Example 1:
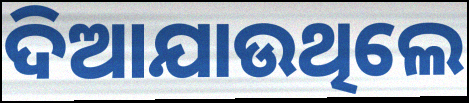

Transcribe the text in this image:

ଦିଆଯାଉଥିଲେ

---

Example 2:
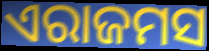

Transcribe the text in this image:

ଏରାଜମସ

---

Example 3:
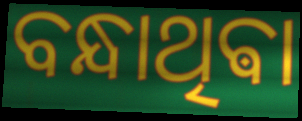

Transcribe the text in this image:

ବନ୍ଧାଥିଵା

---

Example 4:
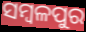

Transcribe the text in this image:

ସମ୍ବଳପୁର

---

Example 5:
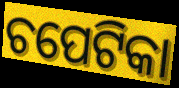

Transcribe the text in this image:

ଚପେଟିକା